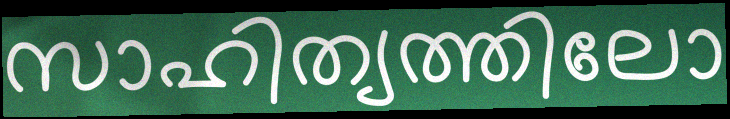
സാഹിത്യത്തിലോ